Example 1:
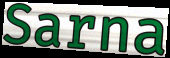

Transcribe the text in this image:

Sarna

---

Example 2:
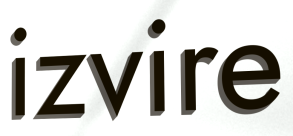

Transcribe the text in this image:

izvire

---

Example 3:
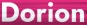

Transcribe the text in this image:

Dorion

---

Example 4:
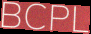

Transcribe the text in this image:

BCPL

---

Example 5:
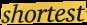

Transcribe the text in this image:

shortest